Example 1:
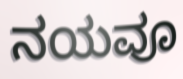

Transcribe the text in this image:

ನಯವೂ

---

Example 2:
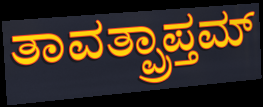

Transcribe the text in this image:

ತಾವತ್ಪ್ರಾಪ್ತಮ್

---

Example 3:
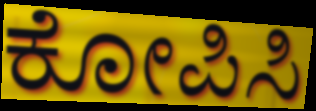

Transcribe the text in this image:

ಕೋಪಿಸಿ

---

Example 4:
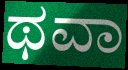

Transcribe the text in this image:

ಥವಾ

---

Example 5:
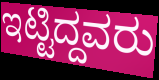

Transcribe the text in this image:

ಇಟ್ಟಿದ್ದವರು